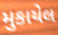
મુકાયેલ